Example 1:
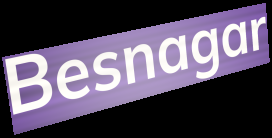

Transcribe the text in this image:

Besnagar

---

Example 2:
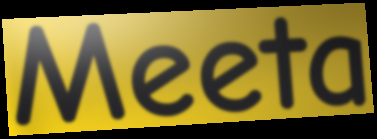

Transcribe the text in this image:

Meeta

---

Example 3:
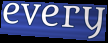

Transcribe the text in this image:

every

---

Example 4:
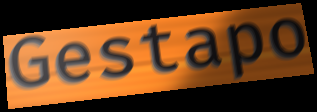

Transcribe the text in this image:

Gestapo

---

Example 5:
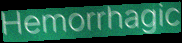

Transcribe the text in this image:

Hemorrhagic